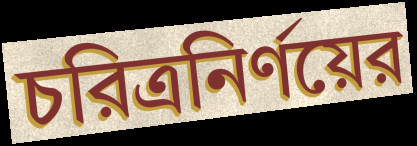
চরিত্রনির্ণয়ের